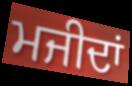
ਮਜੀਦਾਂ